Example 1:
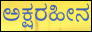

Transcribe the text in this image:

ಅಕ್ಷರಹೀನ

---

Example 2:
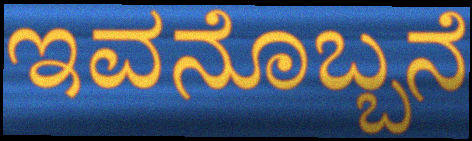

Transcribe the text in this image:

ಇವನೊಬ್ಬನೆ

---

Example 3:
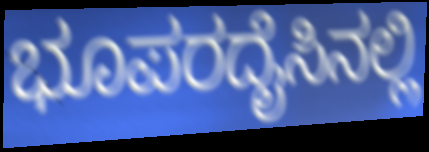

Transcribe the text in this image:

ಭೂಪರದೈಸಿನಲ್ಲಿ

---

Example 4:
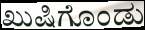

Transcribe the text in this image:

ಖುಷಿಗೊಂಡು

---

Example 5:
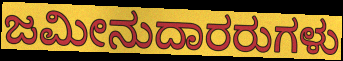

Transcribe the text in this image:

ಜಮೀನುದಾರರುಗಳು